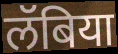
लॅबिया